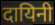
दायिनी